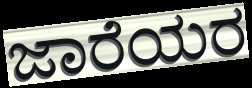
ಜಾರೆಯರ